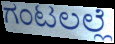
ಗಂಟಲಲ್ಲೆ